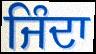
ਜਿੰਦਾ